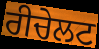
ਰੀਚੇਲਟ